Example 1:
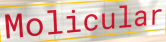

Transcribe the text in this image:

Molicular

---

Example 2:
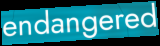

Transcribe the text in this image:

endangered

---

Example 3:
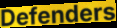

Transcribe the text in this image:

Defenders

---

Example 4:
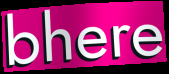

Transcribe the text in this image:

bhere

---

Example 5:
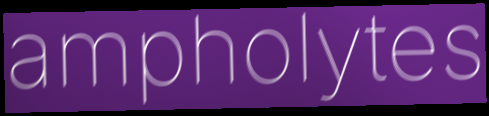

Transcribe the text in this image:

ampholytes